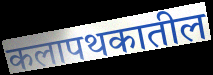
कलापथकातील